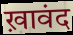
ख़ावंद